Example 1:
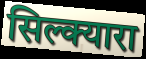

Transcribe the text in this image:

सिल्क्यारा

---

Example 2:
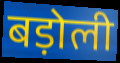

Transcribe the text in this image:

बड़ोली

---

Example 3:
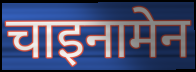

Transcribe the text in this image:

चाइनामेन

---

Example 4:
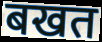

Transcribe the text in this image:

बखत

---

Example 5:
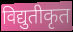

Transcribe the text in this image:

विद्युतीकृत